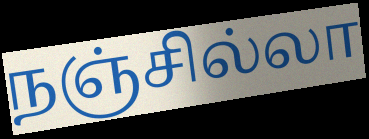
நஞ்சில்லா